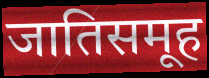
जातिसमूह